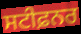
ਸਟੀਫ਼ਨਰ